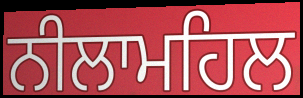
ਨੀਲਾਮਹਿਲ